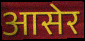
आसेर